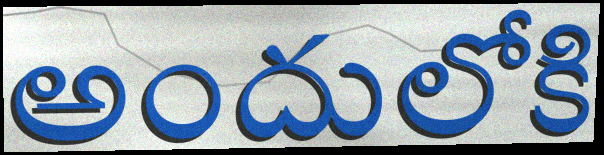
అందులోకి